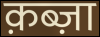
क़ब्ज़ा